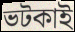
ভটকাই